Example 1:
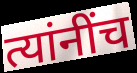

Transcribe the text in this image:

त्यांनींच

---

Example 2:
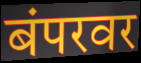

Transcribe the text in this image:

बंपरवर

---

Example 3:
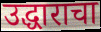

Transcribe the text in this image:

उद्धाराचा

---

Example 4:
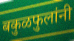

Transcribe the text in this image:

बकुळफुलांनी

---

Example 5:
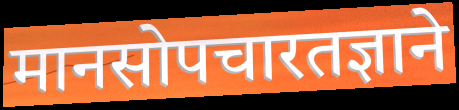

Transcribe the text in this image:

मानसोपचारतज्ञाने